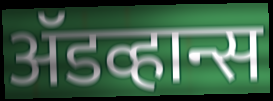
ॲडव्हान्स